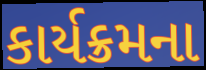
કાર્યક્રમના